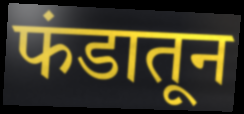
फंडातून